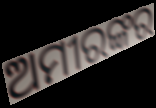
ଅମୀରଙ୍କର